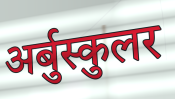
अर्बुस्कुलर